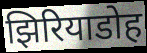
झिरियाडोह